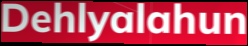
Dehlyalahun